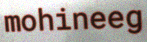
mohineeg